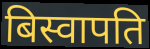
बिस्वापति